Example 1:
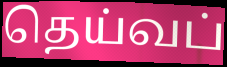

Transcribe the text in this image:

தெய்வப்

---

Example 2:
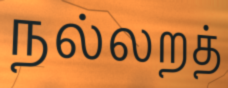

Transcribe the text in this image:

நல்லறத்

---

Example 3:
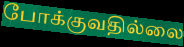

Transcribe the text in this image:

போக்குவதில்லை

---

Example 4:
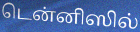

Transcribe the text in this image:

டென்னிஸில்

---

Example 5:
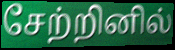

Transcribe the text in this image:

சேற்றினில்